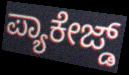
ಪ್ಯಾಕೇಜ್ಡ್